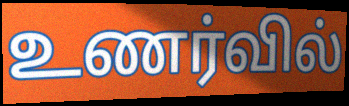
உணர்வில்